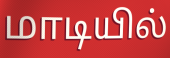
மாடியில்